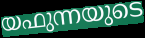
യഫുന്നയുടെ